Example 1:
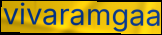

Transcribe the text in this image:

vivaramgaa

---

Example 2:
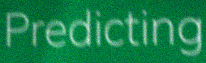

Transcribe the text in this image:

Predicting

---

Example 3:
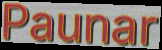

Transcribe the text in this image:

Paunar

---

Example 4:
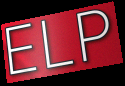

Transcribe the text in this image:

ELP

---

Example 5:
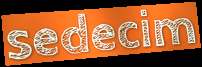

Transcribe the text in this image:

sedecim